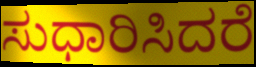
ಸುಧಾರಿಸಿದರೆ